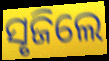
ସୃଜିଲେ